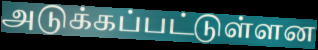
அடுக்கப்பட்டுள்ளன